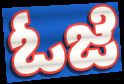
ಓಜೆ